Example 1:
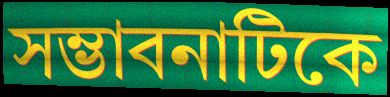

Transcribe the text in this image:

সম্ভাবনাটিকে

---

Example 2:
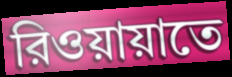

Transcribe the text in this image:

রিওয়ায়াতে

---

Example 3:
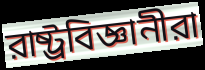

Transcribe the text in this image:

রাষ্ট্রবিজ্ঞানীরা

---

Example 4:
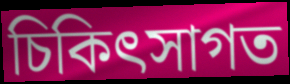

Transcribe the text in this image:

চিকিৎসাগত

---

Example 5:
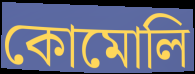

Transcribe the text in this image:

কোমোলি